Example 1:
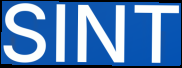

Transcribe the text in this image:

SINT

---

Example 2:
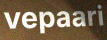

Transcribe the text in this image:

vepaari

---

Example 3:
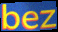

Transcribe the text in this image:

bez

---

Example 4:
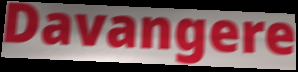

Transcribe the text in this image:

Davangere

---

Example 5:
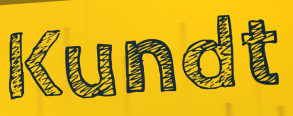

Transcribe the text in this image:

Kundt